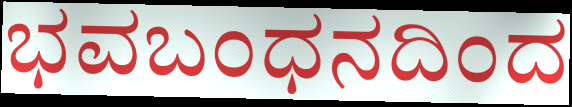
ಭವಬಂಧನದಿಂದ